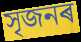
সৃজনৰ